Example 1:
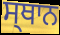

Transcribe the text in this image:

ਸ੍ਥਾਨ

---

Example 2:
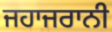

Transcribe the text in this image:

ਜਹਾਜਰਾਨੀ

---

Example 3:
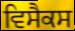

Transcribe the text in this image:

ਵਿਸੈਕਸ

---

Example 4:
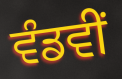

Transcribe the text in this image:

ਵੰਡਵੀਂ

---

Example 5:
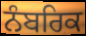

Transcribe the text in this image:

ਨੰਬਰਿਕ